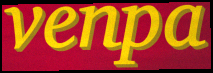
venpa